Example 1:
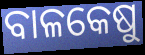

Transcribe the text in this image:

ବାଳକେଷୁ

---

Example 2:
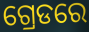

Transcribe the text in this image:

ଗ୍ରେଡରେ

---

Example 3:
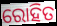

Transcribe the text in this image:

ରୋହିତ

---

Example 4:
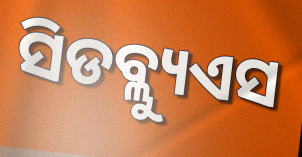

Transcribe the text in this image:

ସିଡବ୍ଲ୍ୟୁଏସ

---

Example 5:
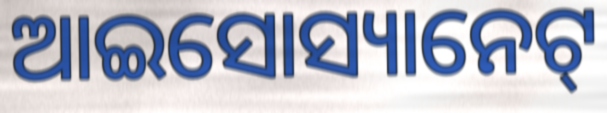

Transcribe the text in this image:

ଆଇସୋସ୍ୟାନେଟ୍